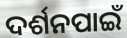
ଦର୍ଶନପାଇଁ